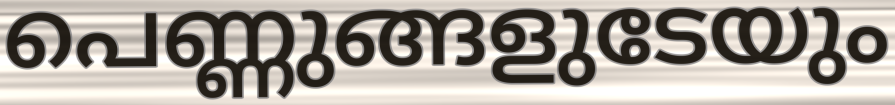
പെണ്ണുങ്ങളുടേയും